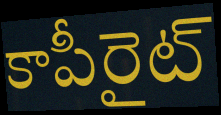
కాపీరైట్